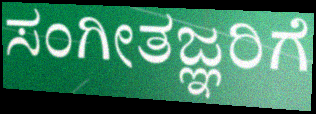
ಸಂಗೀತಜ್ಞರಿಗೆ